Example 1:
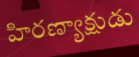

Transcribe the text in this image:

హిరణ్యాక్షుడు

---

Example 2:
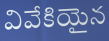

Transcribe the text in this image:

వివేకియైన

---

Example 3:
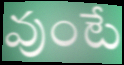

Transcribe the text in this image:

వుంటే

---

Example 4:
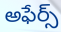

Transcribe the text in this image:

అఫేర్స్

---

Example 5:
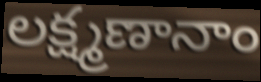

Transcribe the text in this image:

లక్ష్మణానాం